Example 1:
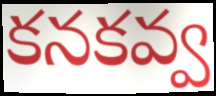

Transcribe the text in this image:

కనకవ్వ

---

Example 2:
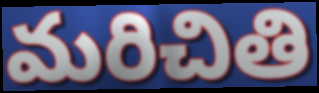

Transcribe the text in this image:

మరిచితి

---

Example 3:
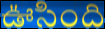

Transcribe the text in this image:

ఊసింది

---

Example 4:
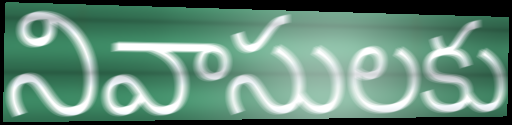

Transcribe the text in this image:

నివాసులకు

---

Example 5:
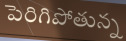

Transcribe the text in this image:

పెరిగిపోతున్న